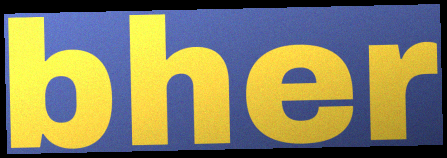
bher